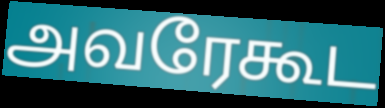
அவரேகூட